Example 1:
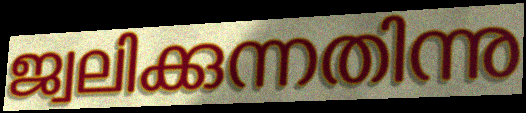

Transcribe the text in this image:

ജ്വലിക്കുന്നതിന്നു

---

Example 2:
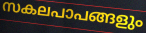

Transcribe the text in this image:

സകലപാപങ്ങളും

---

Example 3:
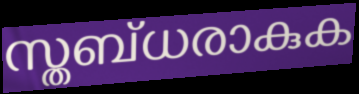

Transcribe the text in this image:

സ്തബ്ധരാകുക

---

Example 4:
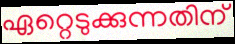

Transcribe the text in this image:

ഏറ്റെടുക്കുന്നതിന്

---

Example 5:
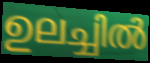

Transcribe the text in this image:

ഉലച്ചിൽ